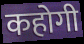
कहोगी